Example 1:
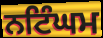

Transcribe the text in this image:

ਨਟਿੰਘਮ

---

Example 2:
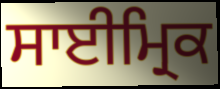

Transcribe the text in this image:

ਸਾਈਮ੍ਰਿਕ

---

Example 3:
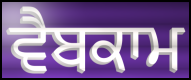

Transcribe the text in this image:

ਵੈਬਕਾਮ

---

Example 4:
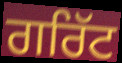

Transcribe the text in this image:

ਗਰਿੱਟ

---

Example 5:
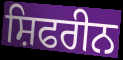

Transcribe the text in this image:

ਸ਼ਿਫਰੀਨ